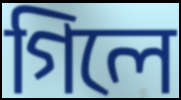
গিলে